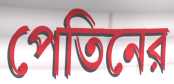
পেতিনের